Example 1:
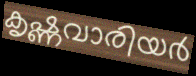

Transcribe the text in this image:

കൃഷ്ണവാരിയർ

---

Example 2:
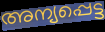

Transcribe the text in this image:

അന്യപ്പെട്ട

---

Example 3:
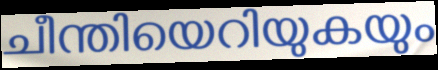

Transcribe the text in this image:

ചീന്തിയെറിയുകയും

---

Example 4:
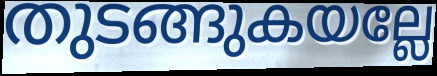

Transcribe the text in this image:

തുടങ്ങുകയല്ലേ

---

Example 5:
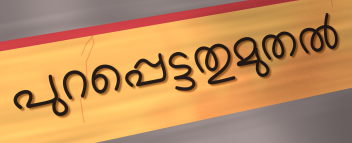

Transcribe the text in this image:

പുറപ്പെട്ടതുമുതൽ